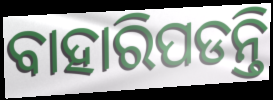
ବାହାରିପଡନ୍ତି